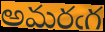
అమరఁగ